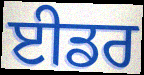
ਈਡਰ